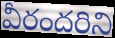
వీరందరిని